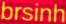
brsinh